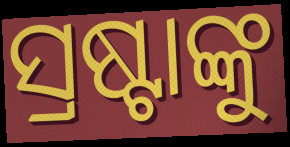
ସ୍ରଷ୍ଟାଙ୍କୁ